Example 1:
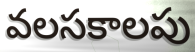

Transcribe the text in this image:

వలసకాలపు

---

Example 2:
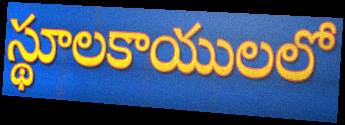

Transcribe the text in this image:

స్థూలకాయులలో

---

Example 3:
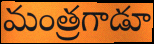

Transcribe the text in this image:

మంత్రగాడూ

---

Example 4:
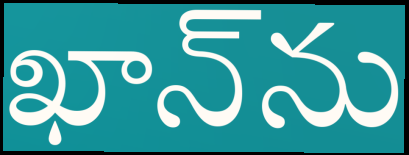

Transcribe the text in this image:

ఖాన్‌ను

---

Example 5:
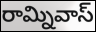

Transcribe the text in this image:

రామ్నివాస్